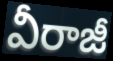
వీరాజీ